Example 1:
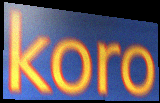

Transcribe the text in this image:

koro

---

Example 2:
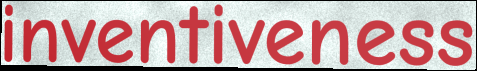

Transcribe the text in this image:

inventiveness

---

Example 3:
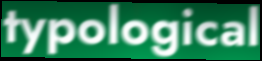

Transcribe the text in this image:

typological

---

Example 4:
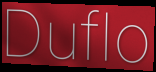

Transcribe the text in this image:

Duflo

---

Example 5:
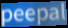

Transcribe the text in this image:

peepal